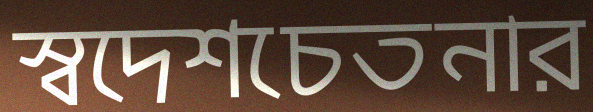
স্বদেশচেতনার